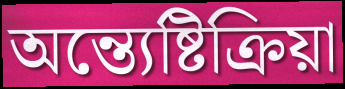
অন্ত্যেষ্টিক্ৰিয়া